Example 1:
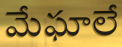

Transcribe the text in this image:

మేఘాలే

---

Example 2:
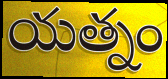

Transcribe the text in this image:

యత్నం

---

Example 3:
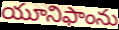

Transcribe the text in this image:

యూనిఫాంను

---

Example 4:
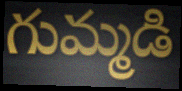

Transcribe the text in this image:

గుమ్మడి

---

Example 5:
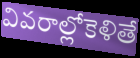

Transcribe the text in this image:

వివరాల్లోకెళితే